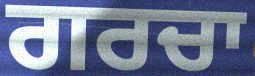
ਗਰਚਾ